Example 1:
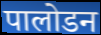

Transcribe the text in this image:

पालोडन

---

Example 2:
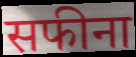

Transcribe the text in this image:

सफीना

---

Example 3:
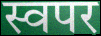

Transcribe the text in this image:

स्वपर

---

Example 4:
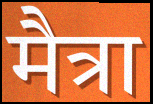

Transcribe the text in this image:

मैत्रा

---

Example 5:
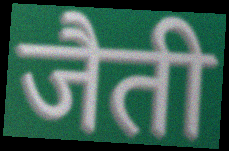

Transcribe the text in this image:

जैती